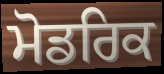
ਮੋਡਰਿਕ